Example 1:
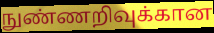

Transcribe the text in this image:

நுண்ணறிவுக்கான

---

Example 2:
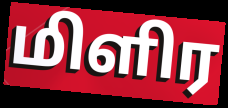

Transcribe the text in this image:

மிளிர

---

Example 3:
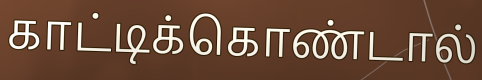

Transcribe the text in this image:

காட்டிக்கொண்டால்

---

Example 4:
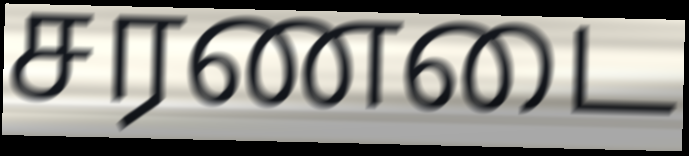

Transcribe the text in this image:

சரணடை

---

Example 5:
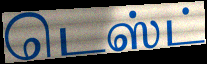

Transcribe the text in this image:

டெஸ்ட்